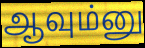
ஆவும்னு